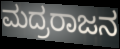
ಮದ್ರರಾಜನ